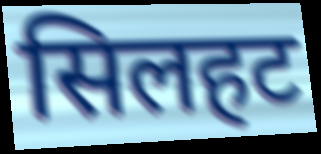
सिलहट